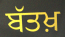
ਬੱਤਖ਼